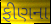
ફીણના